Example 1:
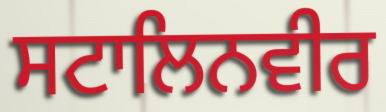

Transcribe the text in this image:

ਸਟਾਲਿਨਵੀਰ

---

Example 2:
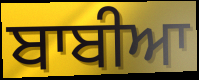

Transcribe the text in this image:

ਬਾਬੀਆ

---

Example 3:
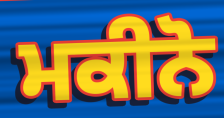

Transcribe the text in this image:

ਮਕੀਨੋ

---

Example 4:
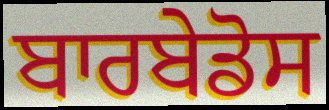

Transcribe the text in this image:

ਬਾਰਬੇਡੋਸ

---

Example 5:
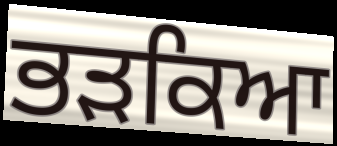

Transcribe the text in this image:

ਭੜਕਿਆ